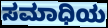
ಸಮಾಧಿಯ